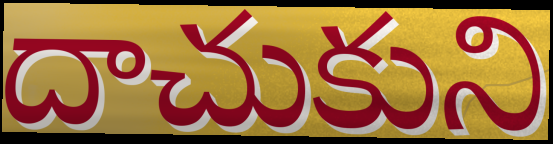
దాచుకుని